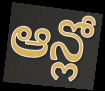
ఆన్లో